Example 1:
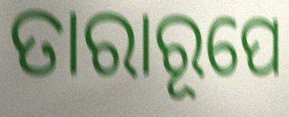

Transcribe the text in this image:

ତାରାରୂପେ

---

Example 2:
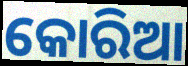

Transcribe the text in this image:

କୋରିଆ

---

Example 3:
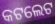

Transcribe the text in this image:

କଟଲେଟ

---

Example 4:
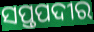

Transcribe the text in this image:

ସପ୍ତପଦୀର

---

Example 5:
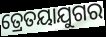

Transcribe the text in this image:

ତ୍ରେତୟାଯୁଗର